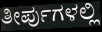
ತೀರ್ಪುಗಳಲ್ಲಿ